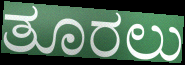
ತೂರಲು